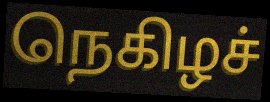
நெகிழச்